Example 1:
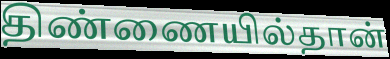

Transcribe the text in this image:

திண்ணையில்தான்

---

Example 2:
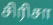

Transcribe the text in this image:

சிரிசா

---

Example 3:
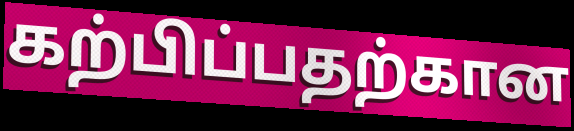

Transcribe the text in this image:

கற்பிப்பதற்கான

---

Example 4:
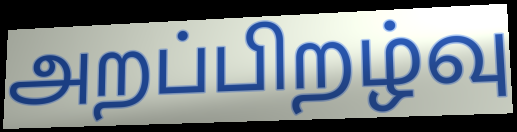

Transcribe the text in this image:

அறப்பிறழ்வு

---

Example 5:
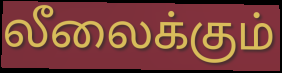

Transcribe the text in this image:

லீலைக்கும்